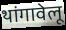
थांगावेलू